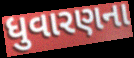
ધુવારણના